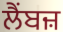
ਲੈਂਬਜ਼